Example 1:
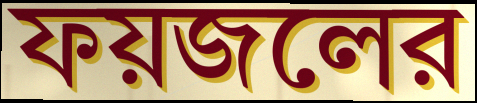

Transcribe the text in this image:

ফয়জলের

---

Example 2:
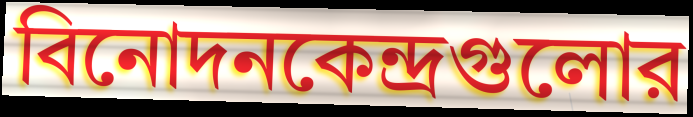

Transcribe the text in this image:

বিনোদনকেন্দ্রগুলোর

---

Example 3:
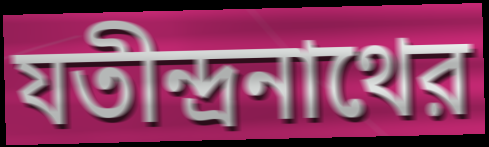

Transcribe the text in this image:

যতীন্দ্রনাথের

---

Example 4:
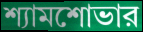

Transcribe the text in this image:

শ্যামশোভার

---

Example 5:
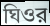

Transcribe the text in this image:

ঘিওর